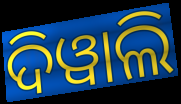
ଦିୱାଲି